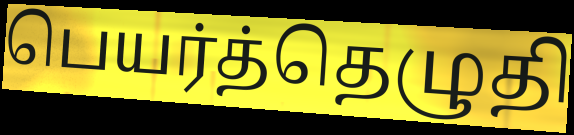
பெயர்த்தெழுதி